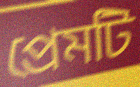
প্রেমটি